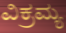
ವಿಕ್ರಮ್ಯ